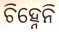
ଚିହ୍ନେନି